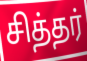
சித்தர்